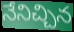
నేనిచ్చిన